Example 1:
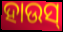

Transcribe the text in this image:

ହାଉସ୍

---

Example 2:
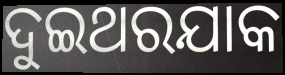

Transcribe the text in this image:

ଦୁଇଥରଯାକ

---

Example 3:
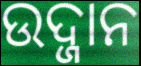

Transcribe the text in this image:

ଉଦ୍ଜାନ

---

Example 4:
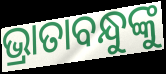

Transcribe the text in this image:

ଭ୍ରାତାବନ୍ଧୁଙ୍କୁ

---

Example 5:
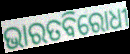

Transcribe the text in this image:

ଭାରତବିରୋଧୀ